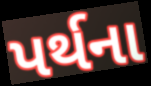
પર્થના